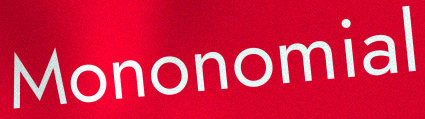
Mononomial